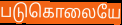
படுகொலையே